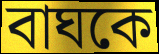
বাঘকে